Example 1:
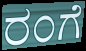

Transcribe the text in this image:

ರಂಗೆ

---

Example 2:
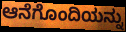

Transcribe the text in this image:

ಆನೆಗೊಂದಿಯನ್ನು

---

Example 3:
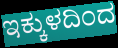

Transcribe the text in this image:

ಇಕ್ಕುಳದಿಂದ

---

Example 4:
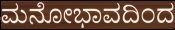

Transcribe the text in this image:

ಮನೋಭಾವದಿಂದ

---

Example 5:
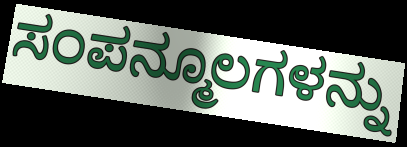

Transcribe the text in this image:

ಸಂಪನ್ಮೂಲಗಳನ್ನು